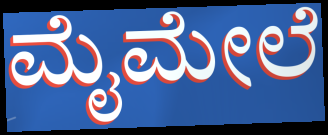
ಮೈಮೇಲೆ